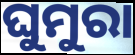
ଘୁମୁରା